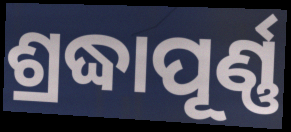
ଶ୍ରଦ୍ଧାପୂର୍ଣ୍ଣ